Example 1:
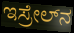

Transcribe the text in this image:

ಇಸ್ರೇಲ್‍ನ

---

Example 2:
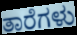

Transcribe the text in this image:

ತಾರೆಗಳು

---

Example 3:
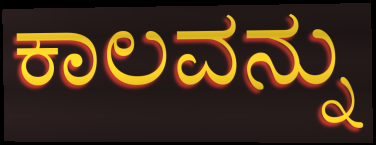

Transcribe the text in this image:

ಕಾಲವನ್ನು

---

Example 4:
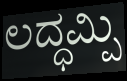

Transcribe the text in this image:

ಲದ್ಧಮ್ಪಿ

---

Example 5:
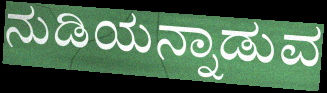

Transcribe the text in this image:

ನುಡಿಯನ್ನಾಡುವ